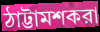
ঠাট্টামশকরা